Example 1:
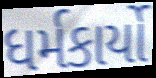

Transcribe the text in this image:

ધર્મકાર્યો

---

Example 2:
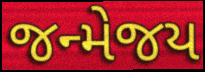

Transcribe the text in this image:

જન્મેજય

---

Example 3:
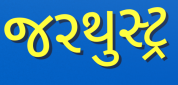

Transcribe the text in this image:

જરથુસ્ટ્ર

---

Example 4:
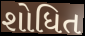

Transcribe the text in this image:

શોધિત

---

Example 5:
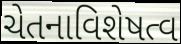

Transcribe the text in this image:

ચેતનાવિશેષત્વ